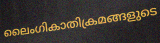
ലൈംഗികാതിക്രമങ്ങളുടെ